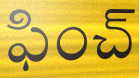
ఫించ్